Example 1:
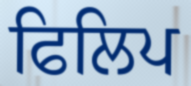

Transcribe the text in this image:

ਫਿਲਿਪ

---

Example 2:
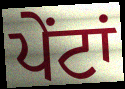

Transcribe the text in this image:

ਪੇਂਟਾਂ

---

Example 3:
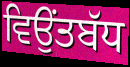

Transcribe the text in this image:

ਵਿਉਂਤਬੱਧ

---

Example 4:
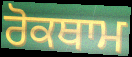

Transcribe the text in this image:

ਰੋਕਥਾਮ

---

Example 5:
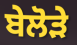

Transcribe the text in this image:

ਬੇਲੋੜੇ